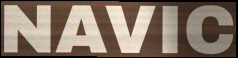
NAVIC